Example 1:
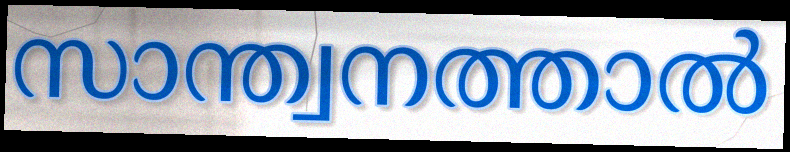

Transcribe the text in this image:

സാന്ത്വനത്താൽ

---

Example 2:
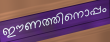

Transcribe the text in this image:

ഈണത്തിനൊപ്പം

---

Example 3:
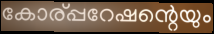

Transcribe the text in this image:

കോര്പ്പറേഷന്റെയും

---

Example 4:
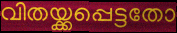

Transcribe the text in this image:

വിതയ്ക്കപ്പെട്ടതോ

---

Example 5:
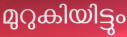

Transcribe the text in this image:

മുറുകിയിട്ടും